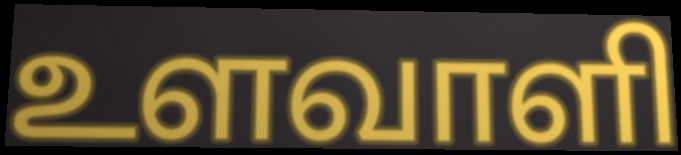
உளவாளி